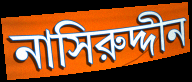
নাসিরুদ্দীন